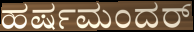
ಹರ್ಷಮಂದರ್